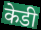
केडी